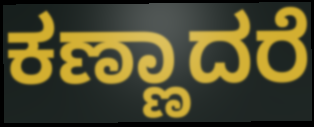
ಕಣ್ಣಾದರೆ